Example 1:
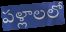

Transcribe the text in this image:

పళ్లాలలో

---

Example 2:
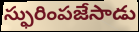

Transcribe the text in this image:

స్ఫురింపజేసాడు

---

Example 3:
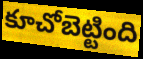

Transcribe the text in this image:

కూచోబెట్టింది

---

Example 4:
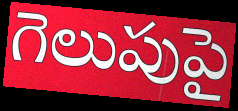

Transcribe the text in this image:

గెలుపుపై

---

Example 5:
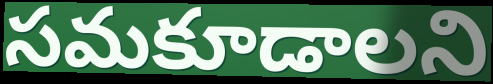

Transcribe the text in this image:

సమకూడాలని